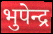
भुपेन्द्र